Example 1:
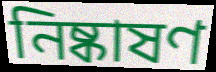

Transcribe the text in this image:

নিষ্কাষণ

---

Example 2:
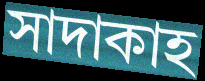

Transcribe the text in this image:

সাদাকাহ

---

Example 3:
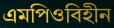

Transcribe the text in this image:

এমপিওবিহীন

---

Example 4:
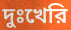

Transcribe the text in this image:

দুঃখেরি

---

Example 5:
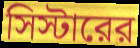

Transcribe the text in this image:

সিস্টারের